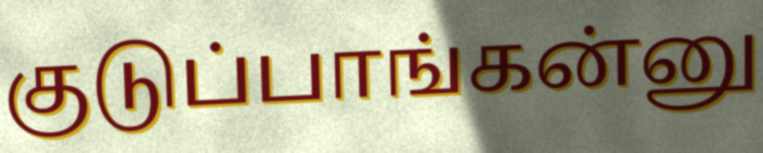
குடுப்பாங்கன்னு